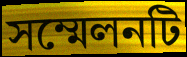
সম্মেলনটি